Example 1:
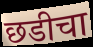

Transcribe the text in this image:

छडीचा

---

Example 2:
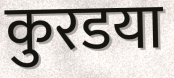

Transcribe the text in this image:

कुरडया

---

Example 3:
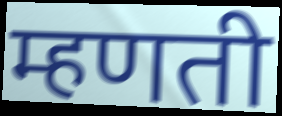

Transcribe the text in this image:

म्हणती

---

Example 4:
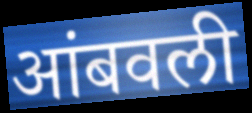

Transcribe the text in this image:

आंबवली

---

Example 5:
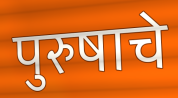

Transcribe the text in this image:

पुरुषाचे